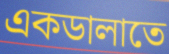
একডালাতে